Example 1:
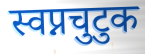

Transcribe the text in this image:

स्वप्नचुटुक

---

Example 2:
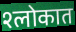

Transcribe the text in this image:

श्लोकात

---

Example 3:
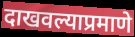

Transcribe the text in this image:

दाखवल्याप्रमाणे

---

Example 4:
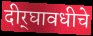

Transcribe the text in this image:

दीर्घावधीचे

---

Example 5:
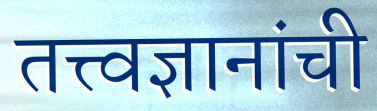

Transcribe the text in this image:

तत्त्वज्ञानांची